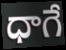
ధాగే